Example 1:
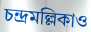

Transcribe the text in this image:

চন্দ্রমল্লিকাও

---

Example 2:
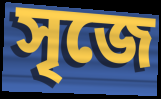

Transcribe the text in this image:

সৃজে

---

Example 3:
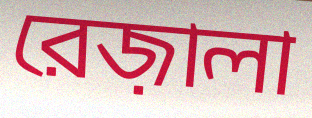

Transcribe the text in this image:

রেজ়ালা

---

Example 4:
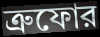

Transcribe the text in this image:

ত্রুফোর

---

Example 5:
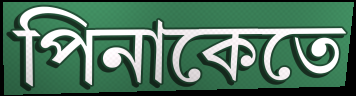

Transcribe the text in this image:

পিনাকেতে